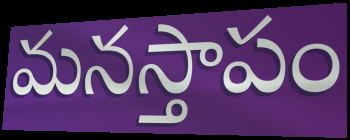
మనస్తాపం